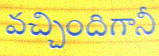
వచ్చిందిగానీ